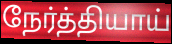
நேர்த்தியாய்